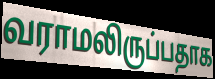
வராமலிருப்பதாக